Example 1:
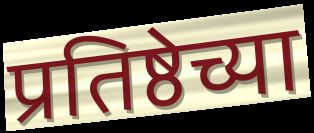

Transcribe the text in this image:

प्रतिष्ठेच्या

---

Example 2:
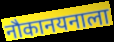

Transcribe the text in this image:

नौकानयनाला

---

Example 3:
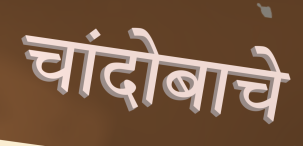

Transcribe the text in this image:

चांदोबाचे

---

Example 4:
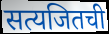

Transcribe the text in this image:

सत्यजितची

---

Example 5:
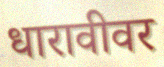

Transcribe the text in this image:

धारावीवर